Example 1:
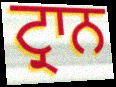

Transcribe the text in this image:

ਟ੍ਰਾਨ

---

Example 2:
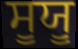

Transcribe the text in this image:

ਸੂਯੂ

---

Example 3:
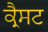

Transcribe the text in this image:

ਕ੍ਰੈਸਟ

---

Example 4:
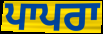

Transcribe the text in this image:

ਪਾਪਰਾ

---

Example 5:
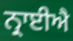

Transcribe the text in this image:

ਨ੍ਰਾਈਐ